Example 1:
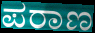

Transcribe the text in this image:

ಪರಾಣ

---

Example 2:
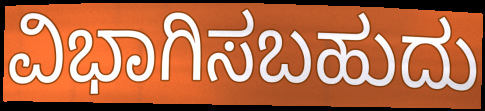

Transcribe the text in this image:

ವಿಭಾಗಿಸಬಹುದು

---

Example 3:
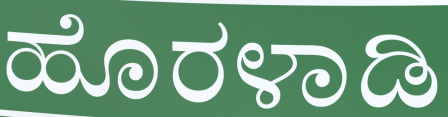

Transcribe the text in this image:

ಹೊರಳಾಡಿ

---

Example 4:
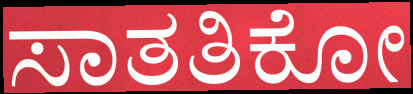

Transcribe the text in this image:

ಸಾತತಿಕೋ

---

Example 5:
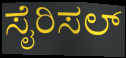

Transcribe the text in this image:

ಸೈರಿಸಲ್